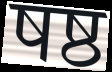
षष्ठ